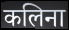
कलिना